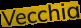
Vecchia